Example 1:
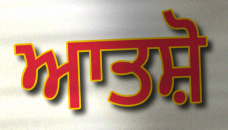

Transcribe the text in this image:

ਆਤਸ਼ੋ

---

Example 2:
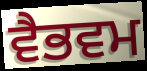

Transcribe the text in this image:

ਵੈਭਵਮ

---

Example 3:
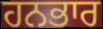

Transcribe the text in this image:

ਹਨਭਾਰ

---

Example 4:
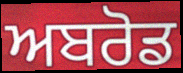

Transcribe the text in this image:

ਅਬਰੋਡ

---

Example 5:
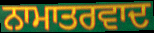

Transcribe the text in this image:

ਨਾਮਾਤਰਵਾਦ